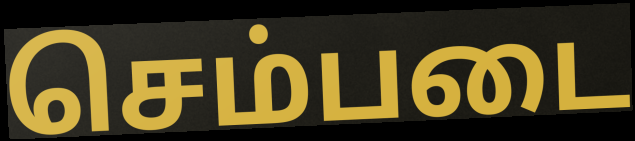
செம்படை